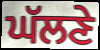
ਘੱਲਣੇ